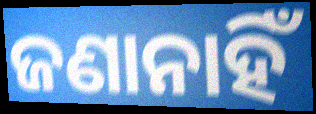
ଜଣାନାହିଁ